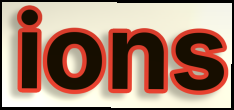
ions